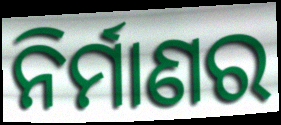
ନିର୍ମାଣର